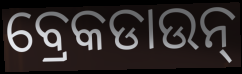
ବ୍ରେକଡାଉନ୍